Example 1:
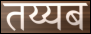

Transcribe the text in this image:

तय्यब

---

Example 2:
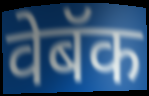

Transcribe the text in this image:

वेबॅक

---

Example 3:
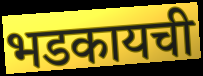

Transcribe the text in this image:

भडकायची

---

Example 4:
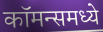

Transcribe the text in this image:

कॉमन्समध्ये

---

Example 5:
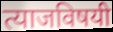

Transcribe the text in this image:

त्याजविषयी